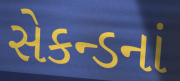
સેકન્ડનાં